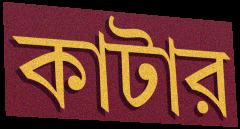
কাটার